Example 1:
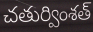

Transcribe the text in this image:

చతుర్వింశత్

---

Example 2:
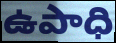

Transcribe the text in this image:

ఉపాధి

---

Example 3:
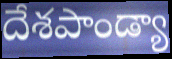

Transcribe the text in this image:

దేశపాండ్యా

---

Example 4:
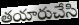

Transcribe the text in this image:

తయారుచేసి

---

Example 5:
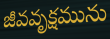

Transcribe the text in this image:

జీవవృక్షమును